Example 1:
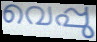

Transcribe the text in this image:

വെപ്പു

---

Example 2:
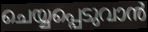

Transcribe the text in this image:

ചെയ്യപ്പെടുവാൻ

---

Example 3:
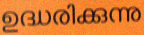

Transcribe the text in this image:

ഉദ്ധരിക്കുന്നു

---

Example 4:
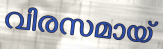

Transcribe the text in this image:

വിരസമായ്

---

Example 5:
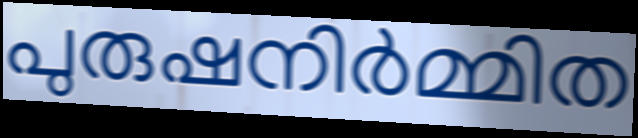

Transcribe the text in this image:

പുരുഷനിർമ്മിത